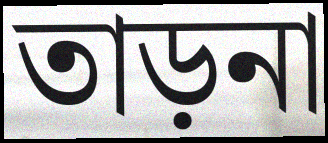
তাড়না